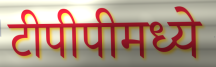
टीपीपीमध्ये